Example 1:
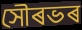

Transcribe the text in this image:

সৌৰভৰ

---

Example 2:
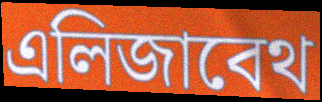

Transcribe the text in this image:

এলিজাবেথ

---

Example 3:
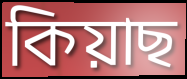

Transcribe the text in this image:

কিয়াছ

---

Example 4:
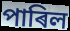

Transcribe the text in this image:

পাৰিল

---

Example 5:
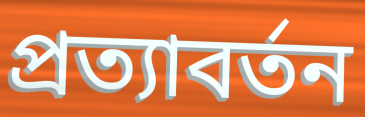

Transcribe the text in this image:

প্ৰত্যাবৰ্তন